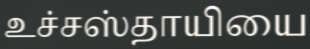
உச்சஸ்தாயியை